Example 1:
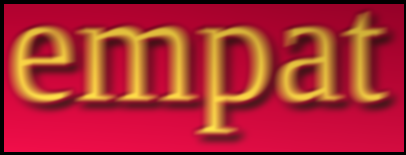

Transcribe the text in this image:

empat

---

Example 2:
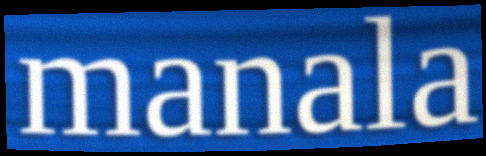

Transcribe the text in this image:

manala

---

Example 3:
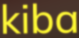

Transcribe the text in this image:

kiba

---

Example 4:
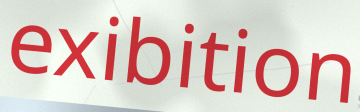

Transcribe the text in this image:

exibition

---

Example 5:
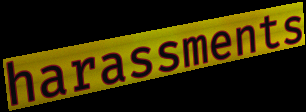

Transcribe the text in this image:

harassments